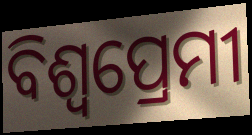
ବିଶ୍ଵପ୍ରେମୀ